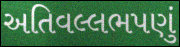
અતિવલ્લભપણું